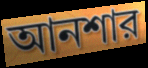
আনশার